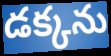
డక్కను